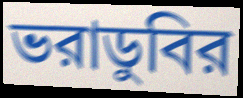
ভরাডুবির